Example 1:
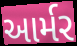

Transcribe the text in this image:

આર્મર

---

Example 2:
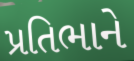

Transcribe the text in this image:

પ્રતિભાને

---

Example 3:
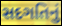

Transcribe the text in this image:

સદગતિનું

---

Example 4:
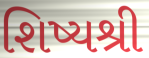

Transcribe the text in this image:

શિષ્યશ્રી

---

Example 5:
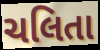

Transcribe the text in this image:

ચલિતા